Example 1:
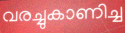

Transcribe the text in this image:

വരച്ചുകാണിച്ച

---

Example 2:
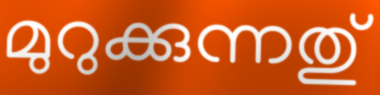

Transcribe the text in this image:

മുറുക്കുന്നതു്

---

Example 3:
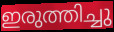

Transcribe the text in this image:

ഇരുത്തിച്ചു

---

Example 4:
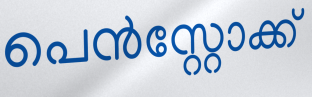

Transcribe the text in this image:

പെൻസ്റ്റോക്ക്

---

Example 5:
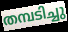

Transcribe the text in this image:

തമ്പടിച്ചു